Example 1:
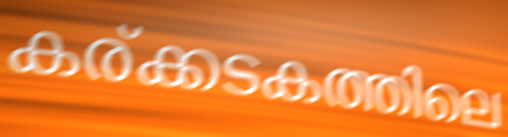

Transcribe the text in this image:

കര്ക്കടകത്തിലെ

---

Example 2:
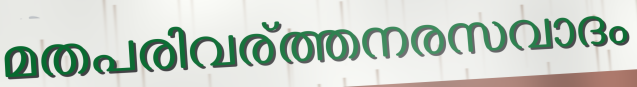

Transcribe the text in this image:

മതപരിവര്ത്തനരസവാദം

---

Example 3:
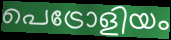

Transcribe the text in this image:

പെട്രോളിയം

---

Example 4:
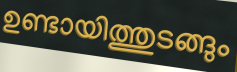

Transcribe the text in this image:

ഉണ്ടായിത്തുടങ്ങും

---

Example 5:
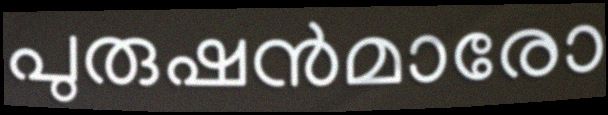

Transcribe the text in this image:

പുരുഷൻമാരോ